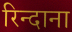
रिन्दाना